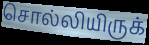
சொல்லியிருக்